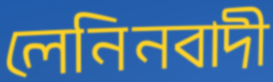
লেনিনবাদী